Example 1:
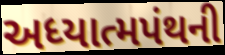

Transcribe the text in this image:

અધ્યાત્મપંથની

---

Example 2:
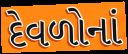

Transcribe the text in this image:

દેવળોનાં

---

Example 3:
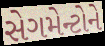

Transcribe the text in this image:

સેગમેન્ટોને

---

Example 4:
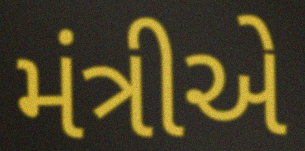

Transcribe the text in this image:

મંત્રીએ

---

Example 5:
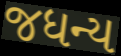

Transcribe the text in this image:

જધન્ય